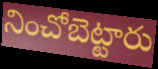
నించోబెట్టారు